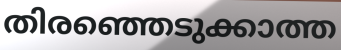
തിരഞ്ഞെടുക്കാത്ത